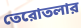
তেরোতলার